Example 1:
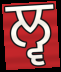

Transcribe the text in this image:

ਲ੍ਵ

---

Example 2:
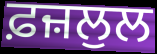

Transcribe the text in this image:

ਫ਼ਜ਼ਲੁਲ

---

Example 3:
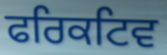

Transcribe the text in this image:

ਫਰਿਕਟਿਵ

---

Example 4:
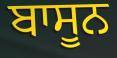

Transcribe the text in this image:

ਬਾਸੂਨ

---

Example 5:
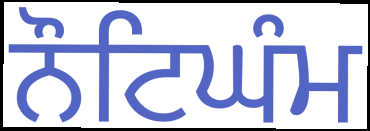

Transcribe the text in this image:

ਨੌਟਿਘੰਮ